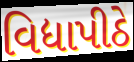
વિદ્યાપીઠે